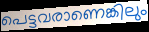
പെട്ടവരാണെങ്കിലും